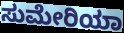
ಸುಮೇರಿಯಾ